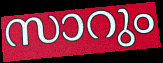
സാറും